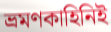
ভ্রমণকাহিনিই